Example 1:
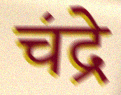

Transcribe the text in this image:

चंद्रे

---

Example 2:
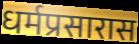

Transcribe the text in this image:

धर्मप्रसारास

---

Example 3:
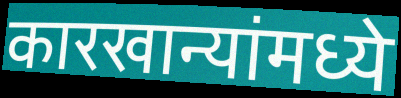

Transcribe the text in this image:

कारखान्यांमध्ये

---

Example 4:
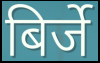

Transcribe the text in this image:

बिर्जे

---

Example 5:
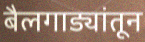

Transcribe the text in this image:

बैलगाड्यांतून